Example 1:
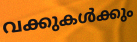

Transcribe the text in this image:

വക്കുകൾക്കും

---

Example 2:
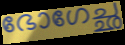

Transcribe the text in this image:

ഭോഗേച്ഛ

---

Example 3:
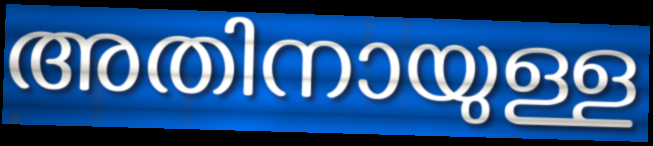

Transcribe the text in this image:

അതിനായുള്ള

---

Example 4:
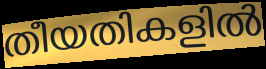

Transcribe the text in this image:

തീയതികളിൽ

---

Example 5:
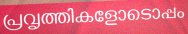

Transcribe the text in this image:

പ്രവൃത്തികളോടൊപ്പം